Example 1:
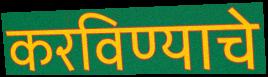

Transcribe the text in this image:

करविण्याचे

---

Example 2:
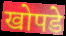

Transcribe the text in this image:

खोपडे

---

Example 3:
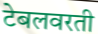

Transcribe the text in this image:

टेबलवरती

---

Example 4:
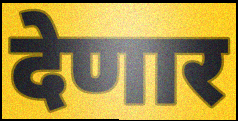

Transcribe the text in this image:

देणार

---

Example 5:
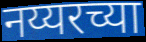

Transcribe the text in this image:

नय्यरच्या